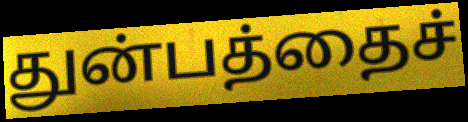
துன்பத்தைச்